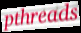
pthreads